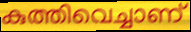
കുത്തിവെച്ചാണ്